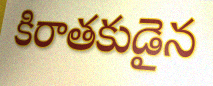
కిరాతకుడైన